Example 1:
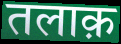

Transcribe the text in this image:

तलाक़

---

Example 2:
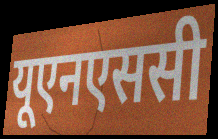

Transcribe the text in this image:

यूएनएससी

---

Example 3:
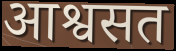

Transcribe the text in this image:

आश्वसत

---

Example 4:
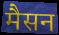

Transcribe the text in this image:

मैसन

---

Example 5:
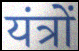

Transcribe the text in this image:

यंत्रों